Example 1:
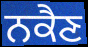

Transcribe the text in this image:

ਨਕੈਣ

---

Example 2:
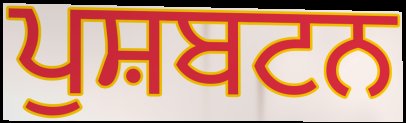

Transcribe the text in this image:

ਪੁਸ਼ਬਟਨ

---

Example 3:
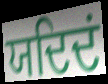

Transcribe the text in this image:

ਯਦਿਦਂ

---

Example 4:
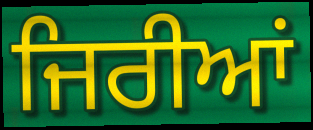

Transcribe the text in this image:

ਜਿਰੀਆਂ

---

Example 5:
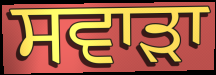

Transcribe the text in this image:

ਸਵਾੜਾ